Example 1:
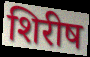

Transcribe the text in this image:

शिरीष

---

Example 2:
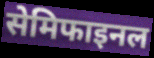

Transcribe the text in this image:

सेमिफाइनल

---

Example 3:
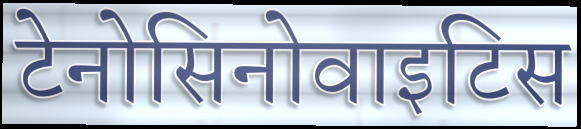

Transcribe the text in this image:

टेनोसिनोवाइटिस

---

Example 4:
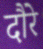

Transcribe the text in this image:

दौरे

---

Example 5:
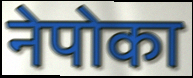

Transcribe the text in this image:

नेपोका